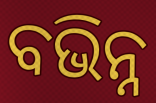
ବଭିନ୍ନ